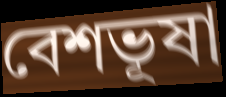
বেশভূষা